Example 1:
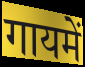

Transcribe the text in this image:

गायमें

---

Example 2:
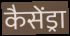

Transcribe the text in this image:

कैसेंड्रा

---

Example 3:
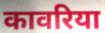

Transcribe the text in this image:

कावरिया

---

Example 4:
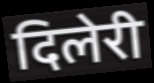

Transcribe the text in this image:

दिलेरी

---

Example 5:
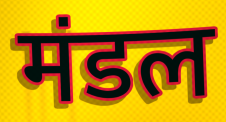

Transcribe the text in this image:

मंडल